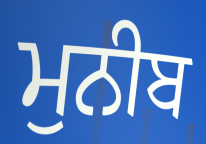
ਮੁਨੀਬ